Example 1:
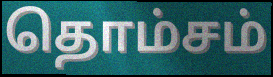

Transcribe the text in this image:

தொம்சம்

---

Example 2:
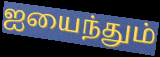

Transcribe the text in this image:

ஐயைந்தும்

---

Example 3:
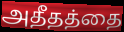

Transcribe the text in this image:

அதீதத்தை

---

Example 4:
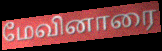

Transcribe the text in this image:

மேவினாரை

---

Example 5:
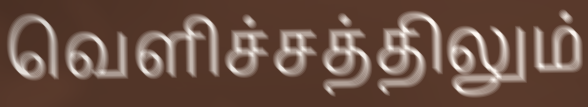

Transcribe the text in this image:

வெளிச்சத்திலும்